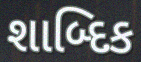
શાબ્દિક